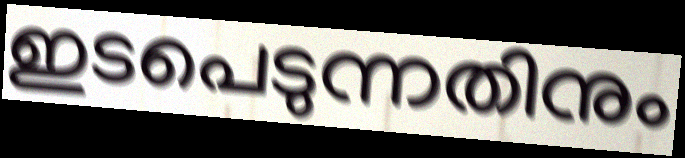
ഇടപെടുന്നതിനും